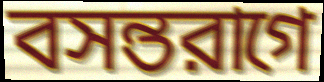
বসন্তরাগে